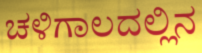
ಚಳಿಗಾಲದಲ್ಲಿನ